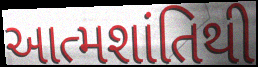
આત્મશાંતિથી